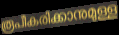
രൂപീകരിക്കാനുമുള്ള